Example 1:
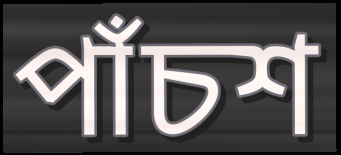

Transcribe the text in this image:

পাঁচশ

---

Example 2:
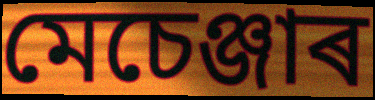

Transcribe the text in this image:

মেচেঞ্জাৰ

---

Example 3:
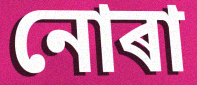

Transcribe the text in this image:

নোৰা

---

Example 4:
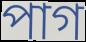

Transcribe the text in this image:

পাগ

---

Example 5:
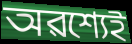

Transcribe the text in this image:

অৱশ্যেই